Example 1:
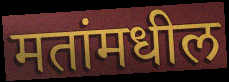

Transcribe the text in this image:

मतांमधील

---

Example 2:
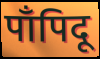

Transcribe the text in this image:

पाँपिदू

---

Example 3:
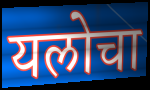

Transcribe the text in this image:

यलोचा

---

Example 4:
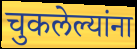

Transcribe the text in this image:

चुकलेल्यांना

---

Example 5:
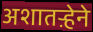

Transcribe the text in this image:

अशातऱ्‍हेने